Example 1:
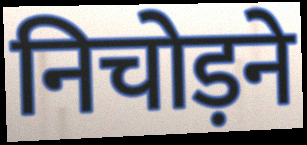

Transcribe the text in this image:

निचोड़ने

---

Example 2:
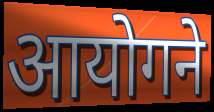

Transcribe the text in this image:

आयोगने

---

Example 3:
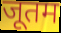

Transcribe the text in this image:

जूतम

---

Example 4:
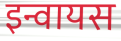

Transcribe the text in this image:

इन्वायस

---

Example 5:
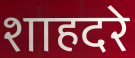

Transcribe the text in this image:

शाहदरे